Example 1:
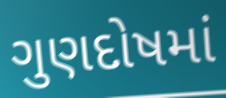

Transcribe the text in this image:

ગુણદોષમાં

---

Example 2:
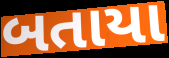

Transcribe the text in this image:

બતાયા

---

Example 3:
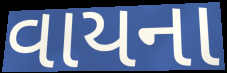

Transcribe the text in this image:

વાયના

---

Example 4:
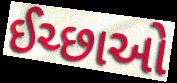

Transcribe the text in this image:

ઈચ્છાઓ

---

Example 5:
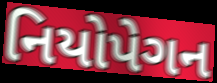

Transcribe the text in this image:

નિયોપેગન